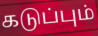
கடுப்பும்